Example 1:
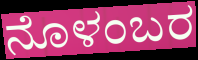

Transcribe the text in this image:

ನೊಳಂಬರ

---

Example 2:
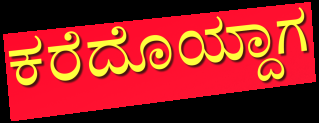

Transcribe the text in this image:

ಕರೆದೊಯ್ದಾಗ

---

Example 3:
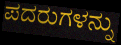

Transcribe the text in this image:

ಪದರುಗಳನ್ನು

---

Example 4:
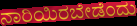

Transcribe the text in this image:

ನಾರಿಯಿರಬೇಡೆಂದು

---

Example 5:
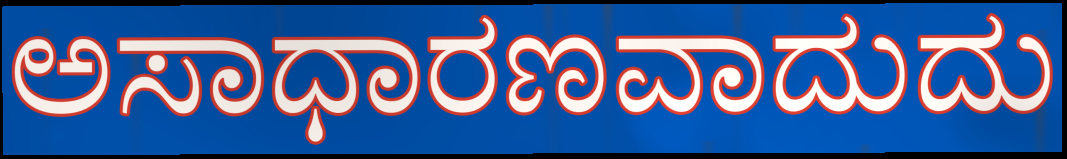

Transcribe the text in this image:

ಅಸಾಧಾರಣವಾದುದು